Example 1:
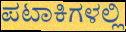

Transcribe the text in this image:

ಪಟಾಕಿಗಳಲ್ಲಿ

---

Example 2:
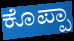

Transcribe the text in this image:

ಕೊಪ್ಪಾ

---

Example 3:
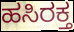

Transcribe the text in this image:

ಹಸಿರಕ್ತ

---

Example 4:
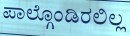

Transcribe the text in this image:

ಪಾಲ್ಗೊಂಡಿರಲಿಲ್ಲ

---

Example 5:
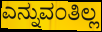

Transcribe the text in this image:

ಎನ್ನುವಂತಿಲ್ಲ